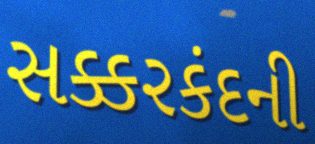
સક્કરકંદની